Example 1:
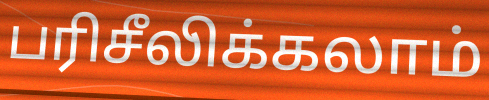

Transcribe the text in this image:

பரிசீலிக்கலாம்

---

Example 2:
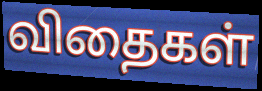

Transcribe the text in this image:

விதைகள்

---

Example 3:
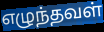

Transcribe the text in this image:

எழுந்தவள்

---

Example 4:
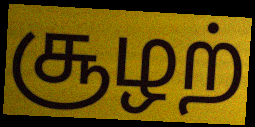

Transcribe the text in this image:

சூழற்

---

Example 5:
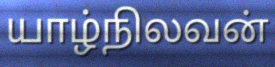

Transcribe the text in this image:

யாழ்நிலவன்